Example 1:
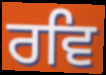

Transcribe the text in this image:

ਰਵਿ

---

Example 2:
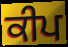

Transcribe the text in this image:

ਕੀਪ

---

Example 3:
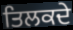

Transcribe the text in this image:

ਤਿਲਕਦੇ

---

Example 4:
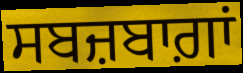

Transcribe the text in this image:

ਸਬਜ਼ਬਾਗ਼ਾਂ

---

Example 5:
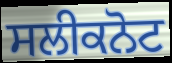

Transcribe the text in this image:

ਸਲੀਕਨੋਟ